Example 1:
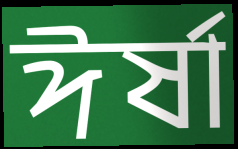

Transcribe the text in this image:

ঈর্ষা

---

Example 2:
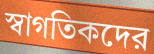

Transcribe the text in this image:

স্বাগতিকদের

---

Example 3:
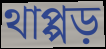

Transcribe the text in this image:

থাপ্পড়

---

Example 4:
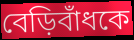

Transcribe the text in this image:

বেড়িবাঁধকে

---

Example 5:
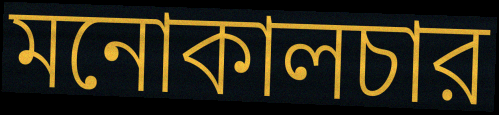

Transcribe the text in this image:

মনোকালচার